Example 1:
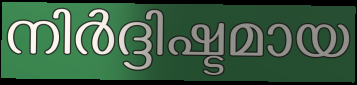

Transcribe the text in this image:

നിർദ്ദിഷ്ടമായ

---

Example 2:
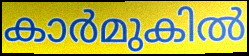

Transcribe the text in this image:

കാർമുകിൽ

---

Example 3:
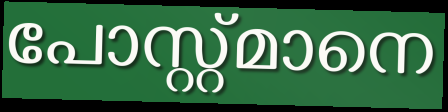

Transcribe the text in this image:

പോസ്റ്റ്മാനെ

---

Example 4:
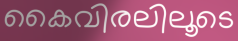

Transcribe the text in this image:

കൈവിരലിലൂടെ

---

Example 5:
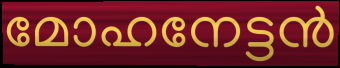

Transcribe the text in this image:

മോഹനേട്ടൻ